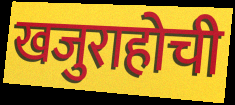
खजुराहोची